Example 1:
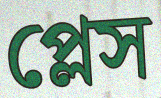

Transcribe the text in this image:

প্লেস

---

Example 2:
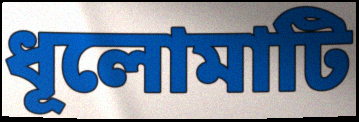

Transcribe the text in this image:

ধূলোমাটি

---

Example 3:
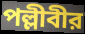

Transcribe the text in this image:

পল্লীবীর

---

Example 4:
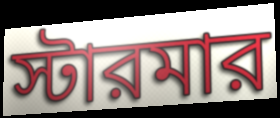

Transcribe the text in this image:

স্টারমার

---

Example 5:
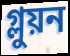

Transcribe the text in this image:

গ্লুয়ন